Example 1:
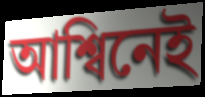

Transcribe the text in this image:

আশ্বিনেই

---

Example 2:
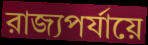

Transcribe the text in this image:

রাজ্যপর্যায়ে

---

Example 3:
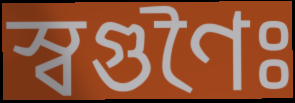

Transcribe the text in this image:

স্বগুণৈঃ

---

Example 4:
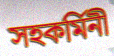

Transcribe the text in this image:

সহকর্মিনী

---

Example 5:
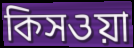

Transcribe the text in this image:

কিসওয়া